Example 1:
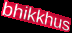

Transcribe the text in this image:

bhikkhus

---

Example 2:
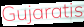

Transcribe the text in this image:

Gujaratis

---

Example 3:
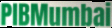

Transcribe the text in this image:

PIBMumbai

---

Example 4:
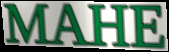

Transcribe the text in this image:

MAHE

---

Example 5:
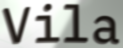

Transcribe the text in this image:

Vila